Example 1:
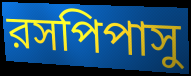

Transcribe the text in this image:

রসপিপাসু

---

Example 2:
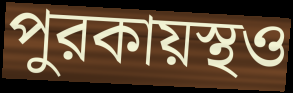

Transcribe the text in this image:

পুরকায়স্থও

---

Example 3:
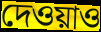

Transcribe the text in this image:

দেওয়াও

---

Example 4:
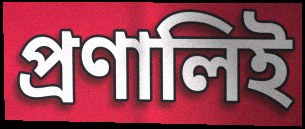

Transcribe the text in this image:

প্রণালিই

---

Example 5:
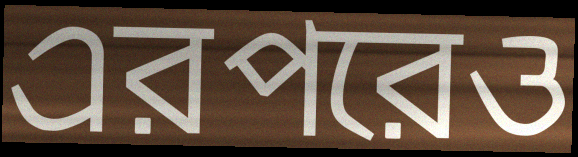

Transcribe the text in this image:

এরপরেও